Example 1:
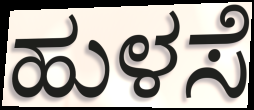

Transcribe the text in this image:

ಹುಳಸೆ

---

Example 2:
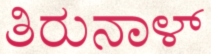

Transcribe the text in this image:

ತಿರುನಾಳ್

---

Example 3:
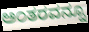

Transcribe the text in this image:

ಅಂತರವನ್ನೂ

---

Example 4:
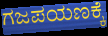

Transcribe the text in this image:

ಗಜಪಯಣಕ್ಕೆ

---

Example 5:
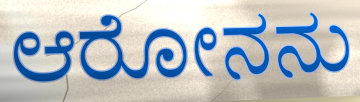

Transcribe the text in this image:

ಆರೋನನು